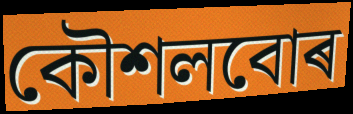
কৌশলবোৰ